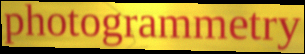
photogrammetry